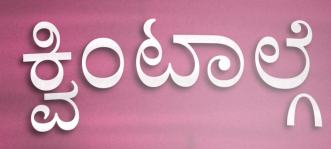
ಕ್ವಿಂಟಾಲ್ಗೆ